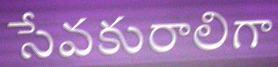
సేవకురాలిగా